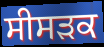
ਸੀਸੜਕ